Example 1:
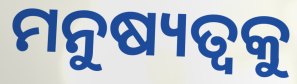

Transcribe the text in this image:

ମନୁଷ୍ୟତ୍ୱକୁ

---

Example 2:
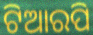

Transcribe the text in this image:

ଟିଆରପି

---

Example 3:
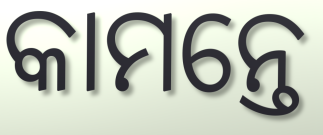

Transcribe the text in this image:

କାମନ୍ତେ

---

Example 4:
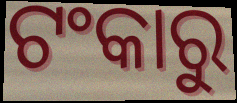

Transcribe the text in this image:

ଟଂକାରୁ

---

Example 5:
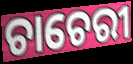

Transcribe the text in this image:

ଚାଚେରୀ